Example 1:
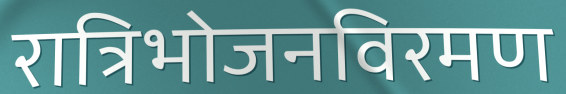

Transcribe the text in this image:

रात्रिभोजनविरमण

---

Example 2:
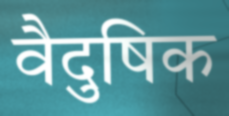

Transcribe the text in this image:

वैदुषिक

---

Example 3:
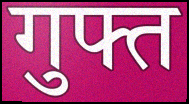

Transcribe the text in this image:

गुफ्त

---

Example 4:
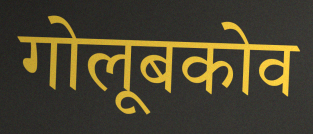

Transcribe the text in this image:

गोलूबकोव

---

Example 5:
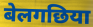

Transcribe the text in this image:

बेलगछिया